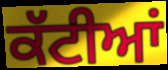
ਕੱਟੀਆਂ